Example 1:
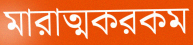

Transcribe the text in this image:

মারাত্মকরকম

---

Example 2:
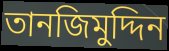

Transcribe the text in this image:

তানজিমুদ্দিন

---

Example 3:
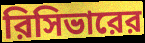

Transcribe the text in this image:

রিসিভারের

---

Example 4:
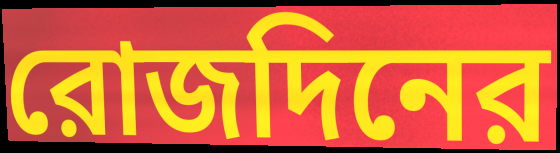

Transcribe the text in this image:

রোজদিনের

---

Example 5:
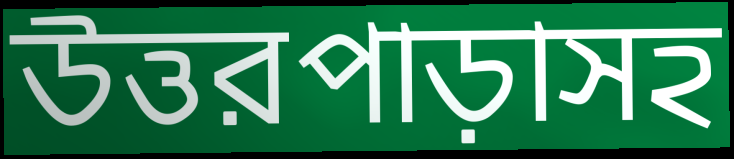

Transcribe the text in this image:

উত্তরপাড়াসহ